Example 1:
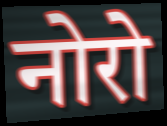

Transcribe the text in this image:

नोरो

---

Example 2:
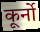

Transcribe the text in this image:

कूर्नो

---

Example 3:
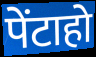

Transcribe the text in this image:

पेंटाहो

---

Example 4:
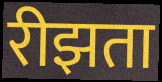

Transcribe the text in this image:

रीझता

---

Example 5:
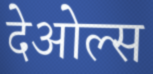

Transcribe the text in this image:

देओल्स